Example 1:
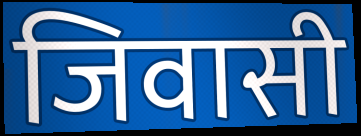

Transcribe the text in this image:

जिवासी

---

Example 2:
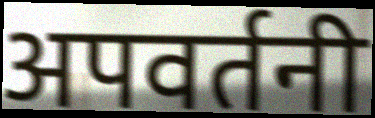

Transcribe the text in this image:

अपवर्तनी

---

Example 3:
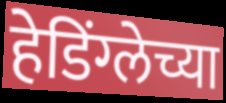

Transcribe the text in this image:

हेडिंग्लेच्या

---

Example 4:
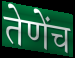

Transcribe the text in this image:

तेणेंच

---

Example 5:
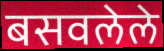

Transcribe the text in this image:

बसवलेले